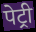
पेट्री